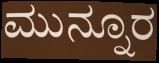
ಮುನ್ನೂರ